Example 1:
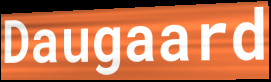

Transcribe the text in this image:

Daugaard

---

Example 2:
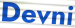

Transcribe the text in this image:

Devni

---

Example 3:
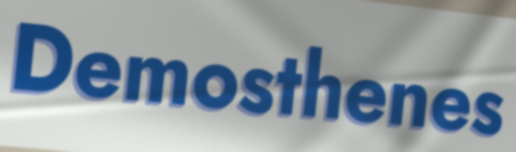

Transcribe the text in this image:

Demosthenes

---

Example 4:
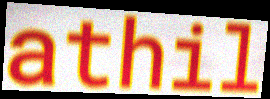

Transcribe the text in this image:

athil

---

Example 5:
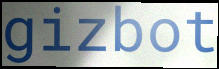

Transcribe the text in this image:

gizbot